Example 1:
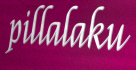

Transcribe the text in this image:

pillalaku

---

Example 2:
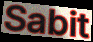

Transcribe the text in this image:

Sabit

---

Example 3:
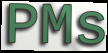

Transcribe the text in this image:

PMs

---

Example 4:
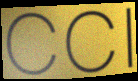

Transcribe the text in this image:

CCI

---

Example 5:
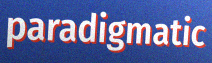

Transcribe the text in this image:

paradigmatic